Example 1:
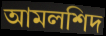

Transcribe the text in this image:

আমলশিদ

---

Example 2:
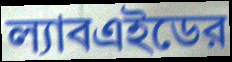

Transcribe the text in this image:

ল্যাবএইডের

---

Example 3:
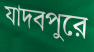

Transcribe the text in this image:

যাদবপুরে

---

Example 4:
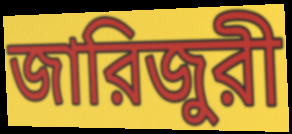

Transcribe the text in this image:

জারিজুরী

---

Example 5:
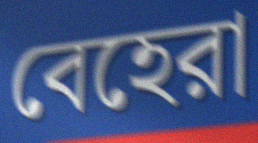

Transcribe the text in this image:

বেহেরা